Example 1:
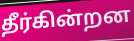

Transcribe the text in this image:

தீர்கின்றன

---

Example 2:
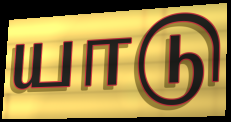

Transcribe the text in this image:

யாடு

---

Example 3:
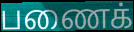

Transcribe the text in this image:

பணைக்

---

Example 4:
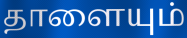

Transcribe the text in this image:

தாளையும்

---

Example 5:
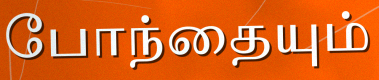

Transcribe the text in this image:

போந்தையும்